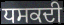
ਧਸਕਦੀ